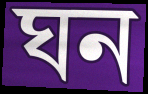
ঘন